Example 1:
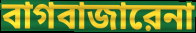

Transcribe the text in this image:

বাগবাজারেনা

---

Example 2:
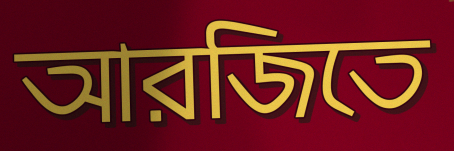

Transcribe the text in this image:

আরজিতে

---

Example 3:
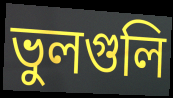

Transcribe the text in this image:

ভুলগুলি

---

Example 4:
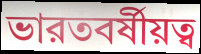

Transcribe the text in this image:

ভারতবর্ষীয়ত্ব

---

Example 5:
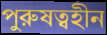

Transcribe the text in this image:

পুরুষত্বহীন